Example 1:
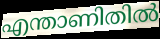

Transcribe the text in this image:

എന്താണിതിൽ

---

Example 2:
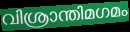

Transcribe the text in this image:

വിശ്രാന്തിമഗമം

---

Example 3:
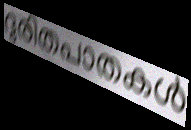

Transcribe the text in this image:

ദുരിതപാതകൾ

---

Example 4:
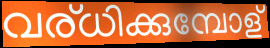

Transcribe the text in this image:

വര്ധിക്കുമ്പോള്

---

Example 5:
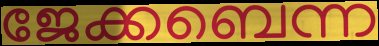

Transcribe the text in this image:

ജേക്കബെന്ന